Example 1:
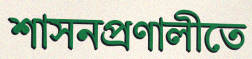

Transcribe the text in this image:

শাসনপ্রণালীতে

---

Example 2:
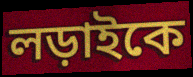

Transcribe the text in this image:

লড়াইকে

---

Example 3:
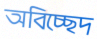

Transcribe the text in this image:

অবিচ্ছেদ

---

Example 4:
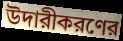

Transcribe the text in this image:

উদারীকরণের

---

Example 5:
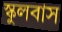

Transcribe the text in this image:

স্কুলবাস